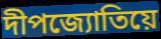
দীপজ্যোতিয়ে